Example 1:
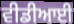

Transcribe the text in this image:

ਵੀਡੀਆਈ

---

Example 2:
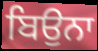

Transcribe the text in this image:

ਬਿਉਨਾ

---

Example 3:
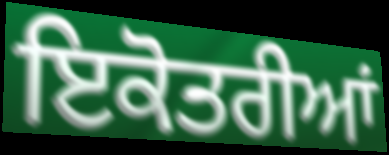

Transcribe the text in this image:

ਇਕੋਤਰੀਆਂ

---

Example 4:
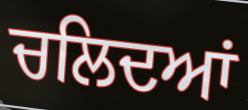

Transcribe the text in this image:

ਚਲਿਦਆਂ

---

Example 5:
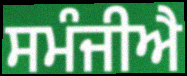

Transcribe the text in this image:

ਸਮੰਜੀਐ